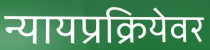
न्यायप्रक्रियेवर